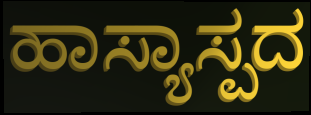
ಹಾಸ್ಯಾಸ್ಪದ